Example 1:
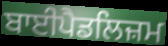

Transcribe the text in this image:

ਬਾਈਪੈਡਲਿਜ਼ਮ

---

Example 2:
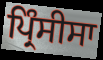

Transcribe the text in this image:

ਪ੍ਰਿੰਸੀਸਾ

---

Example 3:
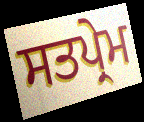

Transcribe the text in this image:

ਸਤਪ੍ਰੇਮ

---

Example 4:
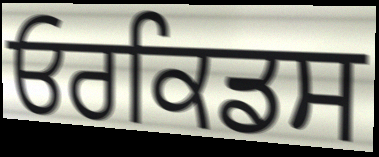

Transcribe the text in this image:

ਓਰਕਿਡਸ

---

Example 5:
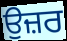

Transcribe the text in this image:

ਉਜ਼ਰ